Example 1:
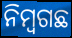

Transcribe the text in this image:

ନିମ୍ୱଗଛ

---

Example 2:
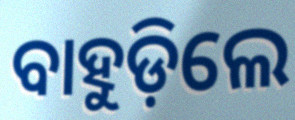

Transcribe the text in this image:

ବାହୁଡ଼ିଲେ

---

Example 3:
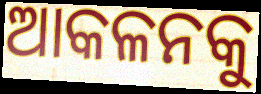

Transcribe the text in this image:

ଆକଳନକୁ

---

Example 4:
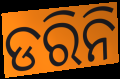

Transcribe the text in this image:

ଡରିନି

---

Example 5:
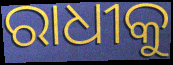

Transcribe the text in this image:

ରାଧୀକୁ